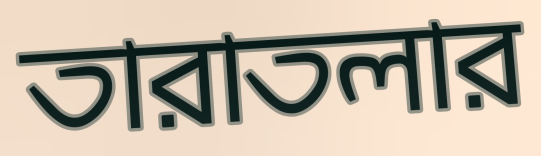
তারাতলার